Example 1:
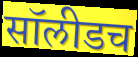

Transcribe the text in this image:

सॉलीडच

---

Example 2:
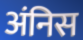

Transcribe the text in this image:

अंनिस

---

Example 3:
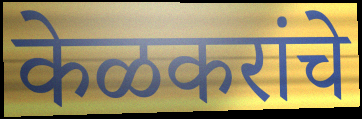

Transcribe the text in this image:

केळकरांचे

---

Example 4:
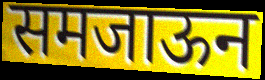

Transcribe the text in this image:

समजाऊन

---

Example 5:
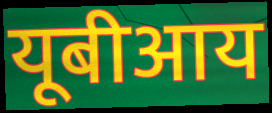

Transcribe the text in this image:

यूबीआय